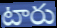
టారు